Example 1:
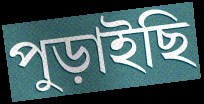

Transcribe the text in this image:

পুড়াইছি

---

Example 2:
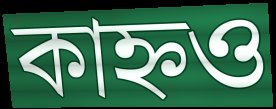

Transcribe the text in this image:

কাহ্নও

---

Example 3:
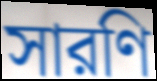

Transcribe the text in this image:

সারণি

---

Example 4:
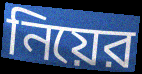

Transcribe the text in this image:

নিয়ের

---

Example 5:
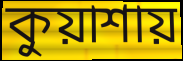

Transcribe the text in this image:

কুয়াশায়